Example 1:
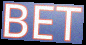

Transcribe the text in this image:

BET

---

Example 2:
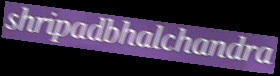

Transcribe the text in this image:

shripadbhalchandra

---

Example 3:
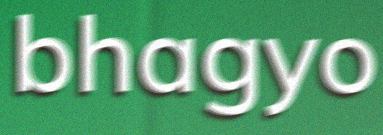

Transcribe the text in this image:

bhagyo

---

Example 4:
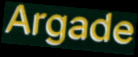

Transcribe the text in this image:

Argade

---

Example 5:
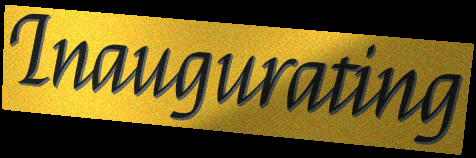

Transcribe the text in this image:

Inaugurating